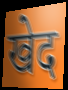
खेद